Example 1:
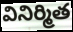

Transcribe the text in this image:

వినిర్మిత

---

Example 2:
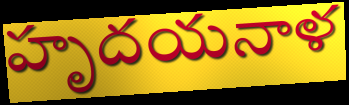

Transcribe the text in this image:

హృదయనాళ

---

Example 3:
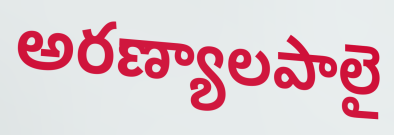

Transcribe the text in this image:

అరణ్యాలపాలై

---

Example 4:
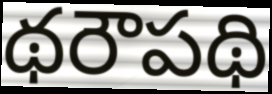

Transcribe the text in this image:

థరౌపథి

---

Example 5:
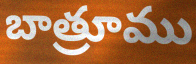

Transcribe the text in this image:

బాత్రూము